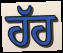
ਹੱਹ